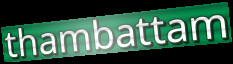
thambattam